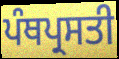
ਪੰਥਪ੍ਰਸਤੀ